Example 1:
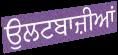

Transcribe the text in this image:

ਉਲਟਬਾਜ਼ੀਆਂ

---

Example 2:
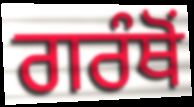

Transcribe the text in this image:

ਗਰੰਥੋਂ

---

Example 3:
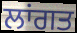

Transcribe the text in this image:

ਲਾਂਗਤ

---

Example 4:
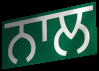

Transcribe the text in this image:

ਨਾਲ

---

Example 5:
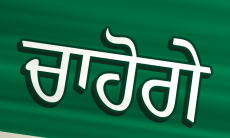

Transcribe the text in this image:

ਚਾਹੋਗੇ